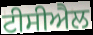
ਟੀਸੀਐਲ